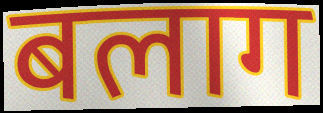
बलाग